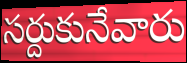
సర్దుకునేవారు